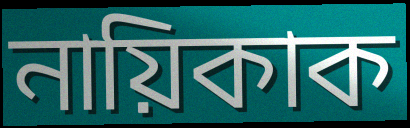
নায়িকাক